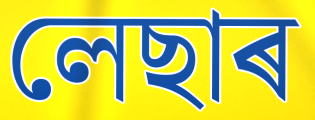
লেছাৰ